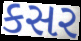
કસર